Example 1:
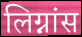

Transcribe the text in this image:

लिग्नांस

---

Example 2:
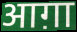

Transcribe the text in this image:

आग़ा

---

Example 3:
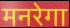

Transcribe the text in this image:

मनरेगा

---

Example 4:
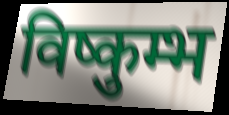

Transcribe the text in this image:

विष्कुम्भ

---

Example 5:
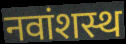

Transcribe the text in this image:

नवांशस्थ